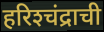
हरिश्‍चंद्राची